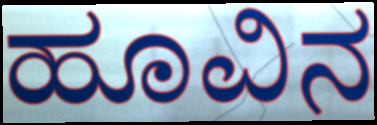
ಹೂವಿನ